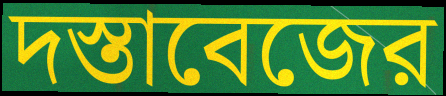
দস্তাবেজের